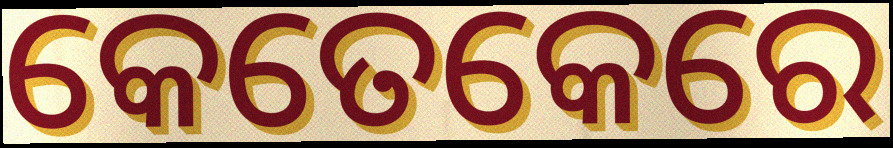
କେତେକେରେ